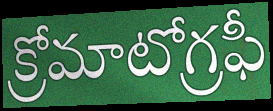
క్రోమాటోగ్రఫీ